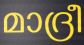
മാദ്രീ